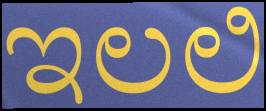
ಇಲಲಿ